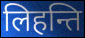
लिहन्ति